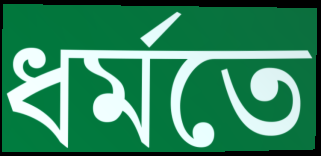
ধৰ্মতে